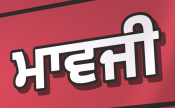
ਮਾਵਜੀ